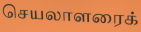
செயலாளரைக்